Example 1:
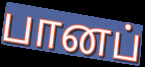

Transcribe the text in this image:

பானப்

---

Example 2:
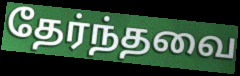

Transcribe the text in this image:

தேர்ந்தவை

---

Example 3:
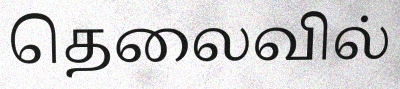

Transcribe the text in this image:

தெலைவில்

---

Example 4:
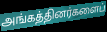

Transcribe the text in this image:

அங்கத்தினர்களைப்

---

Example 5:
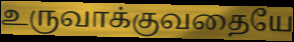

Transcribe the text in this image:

உருவாக்குவதையே